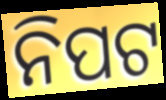
ନିପଟ